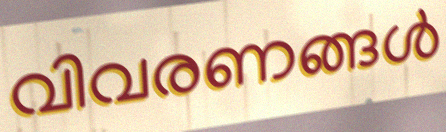
വിവരണങ്ങൾ